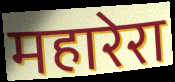
महारेरा